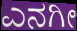
ಎನಗೀ